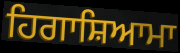
ਹਿਗਾਸ਼ਿਆਮਾ